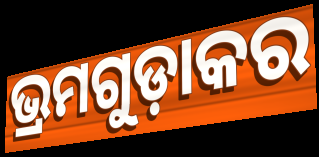
ଭ୍ରମଗୁଡ଼ାକର